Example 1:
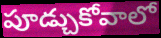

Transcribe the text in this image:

పూడ్చుకోవాలో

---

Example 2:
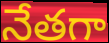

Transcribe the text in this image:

నేతగా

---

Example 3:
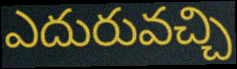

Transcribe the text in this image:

ఎదురువచ్చి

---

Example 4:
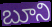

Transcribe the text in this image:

బూని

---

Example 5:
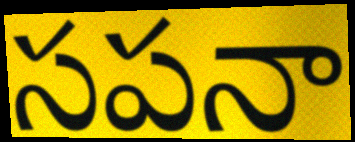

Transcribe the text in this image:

సపనా